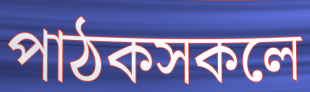
পাঠকসকলে